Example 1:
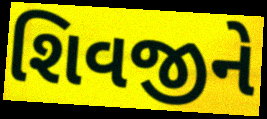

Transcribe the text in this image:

શિવજીને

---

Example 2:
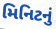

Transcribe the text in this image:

મિનિટનું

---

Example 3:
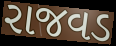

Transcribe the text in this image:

રાજવડ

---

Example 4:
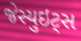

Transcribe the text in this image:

જેસ્યુઇટ્સ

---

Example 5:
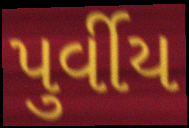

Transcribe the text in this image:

પુર્વીય